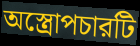
অস্ত্রোপচারটি